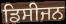
ਡਿਸੀਜਨ